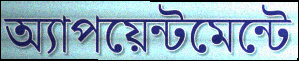
অ্যাপয়েন্টমেন্টে